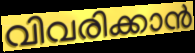
വിവരിക്കാൻ